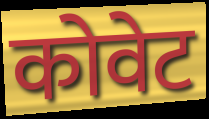
कोवेट